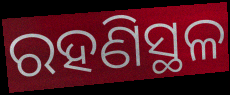
ରହଣିସ୍ଥଳ